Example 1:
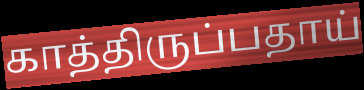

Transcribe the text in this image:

காத்திருப்பதாய்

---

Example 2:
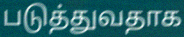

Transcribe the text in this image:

படுத்துவதாக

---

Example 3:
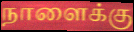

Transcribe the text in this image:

நாளைக்கு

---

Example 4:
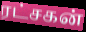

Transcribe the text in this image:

ரட்சகன்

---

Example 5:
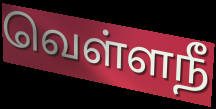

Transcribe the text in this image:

வெள்ளநீ